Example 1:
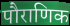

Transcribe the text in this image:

पौराणिक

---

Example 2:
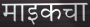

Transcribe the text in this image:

माइकचा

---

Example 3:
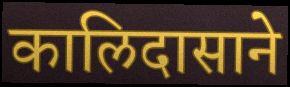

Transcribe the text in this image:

कालिदासाने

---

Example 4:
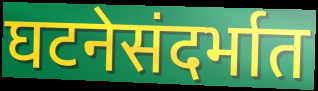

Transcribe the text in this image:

घटनेसंदर्भात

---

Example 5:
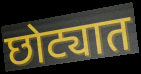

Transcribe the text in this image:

छोट्यात